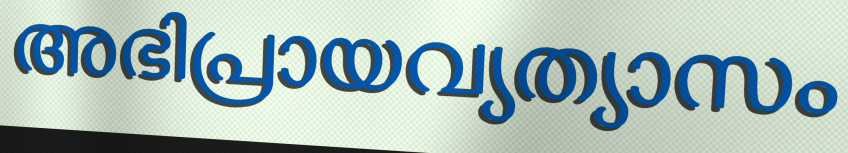
അഭിപ്രായവ്യത്യാസം